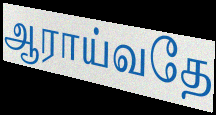
ஆராய்வதே